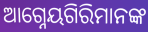
ଆଗ୍ନେୟଗିରିମାନଙ୍କ